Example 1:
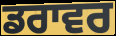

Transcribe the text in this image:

ਡਰਾਵਰ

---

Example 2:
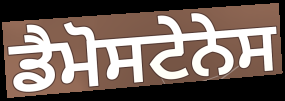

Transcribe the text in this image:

ਡੈਮੋਸਟੇਨੇਸ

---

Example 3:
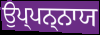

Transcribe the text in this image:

ਉਪ੍ਪਨ੍ਨਾਯ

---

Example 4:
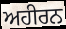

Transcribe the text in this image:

ਅਹੀਰਨ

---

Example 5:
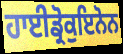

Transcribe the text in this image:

ਹਾਈਡ੍ਰੋਕੁਇਨੋਨ